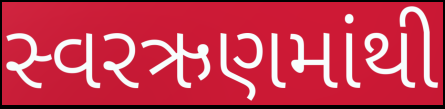
સ્વરઋણમાંથી